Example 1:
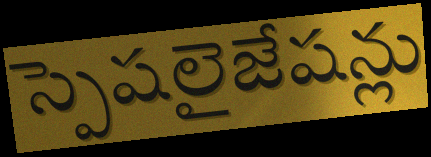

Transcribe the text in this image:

స్పెషలైజేషన్లు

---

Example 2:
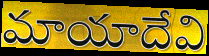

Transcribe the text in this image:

మాయాదేవి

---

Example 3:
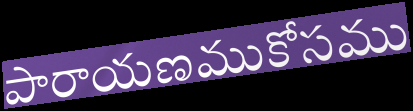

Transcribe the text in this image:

పారాయణముకోసము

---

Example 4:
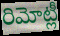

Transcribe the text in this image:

రిమోట్లీ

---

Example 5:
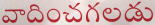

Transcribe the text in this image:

వాదించగలడు